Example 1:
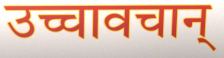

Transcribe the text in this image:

उच्चावचान्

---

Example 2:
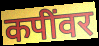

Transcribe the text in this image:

कपींवर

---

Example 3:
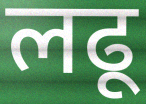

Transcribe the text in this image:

लढू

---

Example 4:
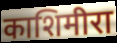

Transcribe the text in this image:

काशिमीरा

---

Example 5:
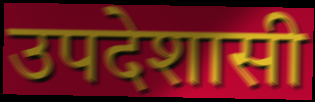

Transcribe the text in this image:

उपदेशासी